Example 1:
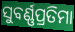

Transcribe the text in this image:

ସୁବର୍ଣ୍ଣପ୍ରତିମା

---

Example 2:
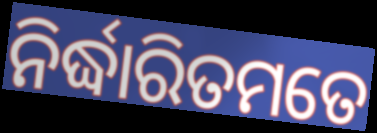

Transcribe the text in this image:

ନିର୍ଦ୍ଧାରିତମତେ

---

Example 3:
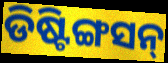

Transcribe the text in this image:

ଡିଷ୍ଟିଙ୍ଗସନ୍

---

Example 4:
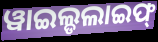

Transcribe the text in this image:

ୱାଇଲ୍ଡଲାଇଫ୍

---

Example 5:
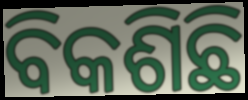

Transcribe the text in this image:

ବିକଶିଛି